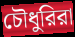
চৌধুরিরা